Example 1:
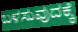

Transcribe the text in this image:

ಬಳಸುವುದಕ್ಕೆ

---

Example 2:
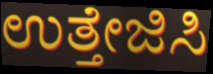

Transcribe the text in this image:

ಉತ್ತೇಜಿಸಿ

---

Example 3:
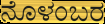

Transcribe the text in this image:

ನೊಳಂಬರ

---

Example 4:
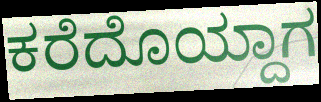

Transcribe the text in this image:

ಕರೆದೊಯ್ದಾಗ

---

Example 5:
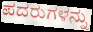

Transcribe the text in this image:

ಪದರುಗಳನ್ನು